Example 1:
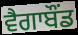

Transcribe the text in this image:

ਵੈਗਾਬੌਂਡ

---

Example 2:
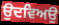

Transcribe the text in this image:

ਉਦਵਿਅਉ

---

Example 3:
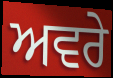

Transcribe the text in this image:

ਅਵਰੇ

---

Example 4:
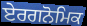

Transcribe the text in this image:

ਏਰਗਨੋਮਿਕ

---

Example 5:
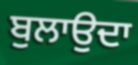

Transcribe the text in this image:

ਬੁਲਾਉਦਾ